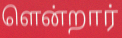
ளென்றார்